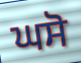
ਘਸੋ